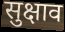
सुक्षाव